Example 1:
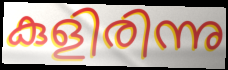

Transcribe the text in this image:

കുളിരിന്നു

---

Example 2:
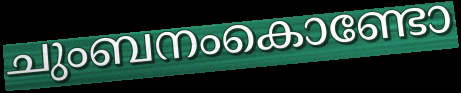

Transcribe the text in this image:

ചുംബനംകൊണ്ടോ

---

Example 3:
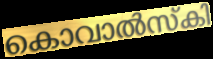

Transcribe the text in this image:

കൊവാൽസ്‌കി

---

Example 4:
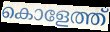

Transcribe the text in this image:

കൊളേത്ത്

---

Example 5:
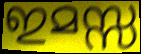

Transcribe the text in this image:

ഇമസ്സ